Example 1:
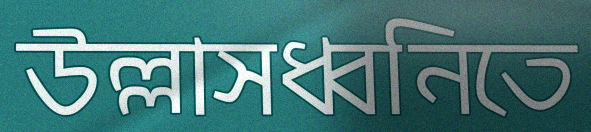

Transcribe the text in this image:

উল্লাসধ্বনিতে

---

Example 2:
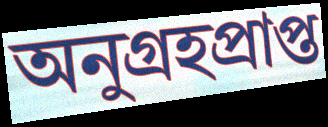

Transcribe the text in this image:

অনুগ্রহপ্রাপ্ত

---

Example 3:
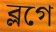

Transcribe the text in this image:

ব্লগে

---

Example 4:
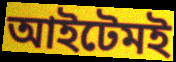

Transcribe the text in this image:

আইটেমই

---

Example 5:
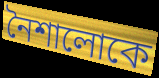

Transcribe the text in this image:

নৈশালোকে